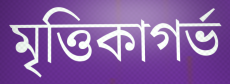
মৃত্তিকাগর্ভ